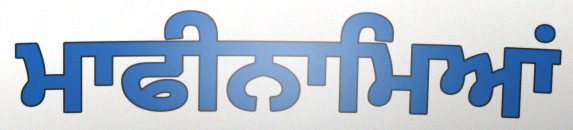
ਮਾਫੀਨਾਮਿਆਂ